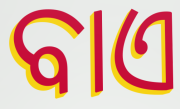
ବାଏ